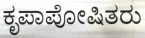
ಕೃಪಾಪೋಷಿತರು